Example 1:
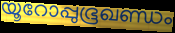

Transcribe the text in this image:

യൂറോപ്പുഭൂഖണ്ഡം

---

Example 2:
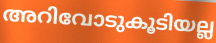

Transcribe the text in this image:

അറിവോടുകൂടിയല്ല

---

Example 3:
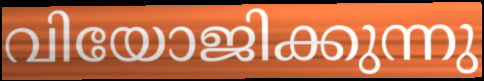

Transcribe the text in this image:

വിയോജിക്കുന്നു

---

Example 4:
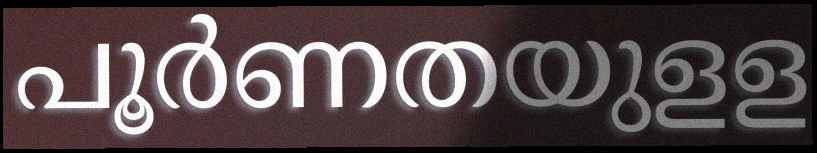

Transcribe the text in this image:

പൂർണതയുളള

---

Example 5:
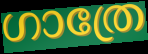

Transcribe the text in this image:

ഗാത്രേ